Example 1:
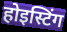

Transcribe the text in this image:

होइस्टिंग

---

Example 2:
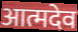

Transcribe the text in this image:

आत्मदेव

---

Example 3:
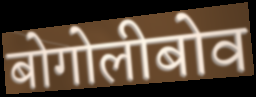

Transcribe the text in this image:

बोगोलीबोव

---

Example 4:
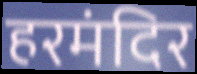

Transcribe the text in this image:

हरमंदिर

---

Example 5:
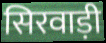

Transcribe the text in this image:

सिरवाड़ी